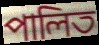
পালিত